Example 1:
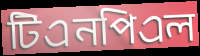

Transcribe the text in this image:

টিএনপিএল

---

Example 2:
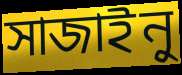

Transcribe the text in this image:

সাজাইনু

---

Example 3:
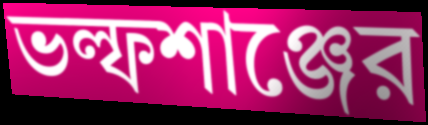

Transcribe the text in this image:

ভল্ফশাঞ্জের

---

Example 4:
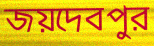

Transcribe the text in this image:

জয়দেবপুর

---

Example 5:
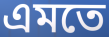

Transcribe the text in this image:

এমতে